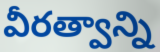
వీరత్వాన్ని